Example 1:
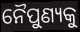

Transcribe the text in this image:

ନୈପୁଣ୍ୟକୁ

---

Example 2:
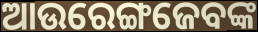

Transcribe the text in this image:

ଆଉରେଙ୍ଗଜେବଙ୍କ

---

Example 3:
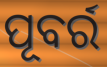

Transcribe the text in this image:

ପୂବର୍ର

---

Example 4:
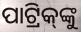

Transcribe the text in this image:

ପାଟ୍ରିକ୍‌ଙ୍କୁ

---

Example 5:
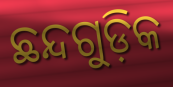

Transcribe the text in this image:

ଛନ୍ଦଗୁଡ଼ିକ